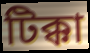
টিক্কা